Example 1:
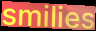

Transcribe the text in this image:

smilies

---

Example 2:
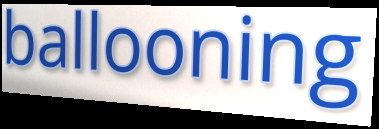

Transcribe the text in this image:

ballooning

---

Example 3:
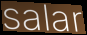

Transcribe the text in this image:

salar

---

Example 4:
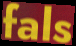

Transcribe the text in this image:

fals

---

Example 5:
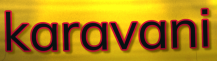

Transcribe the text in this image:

karavani